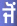
ਜੋਂ